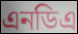
এনডিএ